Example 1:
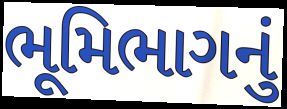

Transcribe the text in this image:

ભૂમિભાગનું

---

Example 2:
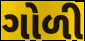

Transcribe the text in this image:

ગોળી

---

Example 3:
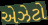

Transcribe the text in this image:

એઝેટો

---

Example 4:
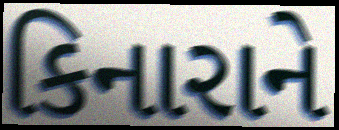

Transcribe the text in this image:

કિનારાને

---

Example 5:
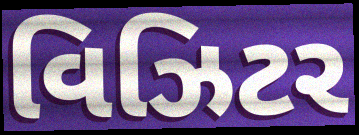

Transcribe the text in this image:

વિઝિટર